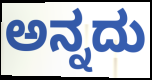
ಅನ್ನದು